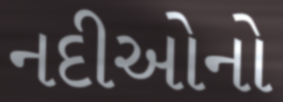
નદીઓનો